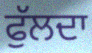
ਫੁੱਲਦਾ